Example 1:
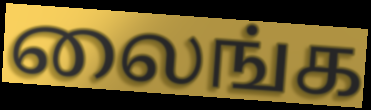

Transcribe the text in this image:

லைங்க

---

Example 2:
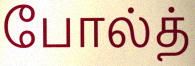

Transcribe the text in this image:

போல்த்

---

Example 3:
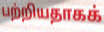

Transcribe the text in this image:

பற்றியதாகக்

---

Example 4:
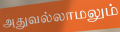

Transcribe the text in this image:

அதுவல்லாமலும்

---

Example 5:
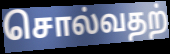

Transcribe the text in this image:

சொல்வதற்